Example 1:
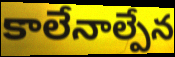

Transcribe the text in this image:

కాలేనాల్పేన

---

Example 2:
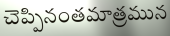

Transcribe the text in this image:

చెప్పినంతమాత్రమున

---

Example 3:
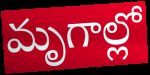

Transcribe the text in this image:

మృగాల్లో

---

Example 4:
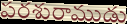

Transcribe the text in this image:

పరశురాముడు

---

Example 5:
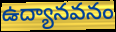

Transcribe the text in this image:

ఉద్యానవనం